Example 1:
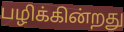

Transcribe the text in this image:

பழிக்கின்றது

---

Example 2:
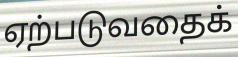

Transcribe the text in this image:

ஏற்படுவதைக்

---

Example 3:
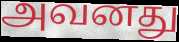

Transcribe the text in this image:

அவனது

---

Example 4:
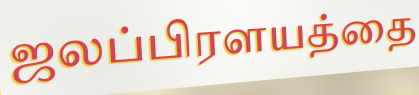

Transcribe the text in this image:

ஜலப்பிரளயத்தை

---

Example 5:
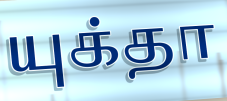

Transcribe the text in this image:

யுக்தா